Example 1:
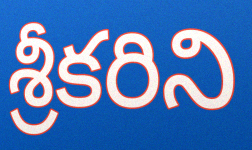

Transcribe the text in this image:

శ్రీకరిని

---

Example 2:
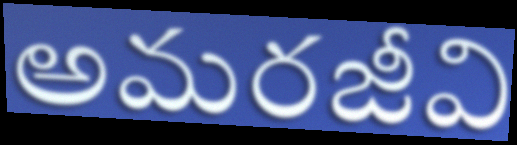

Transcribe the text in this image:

అమరజీవి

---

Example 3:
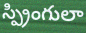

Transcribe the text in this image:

స్ప్రింగులా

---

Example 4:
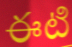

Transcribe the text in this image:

ఈటి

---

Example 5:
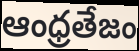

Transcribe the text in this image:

ఆంధ్రతేజం